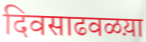
दिवसाढवळय़ा